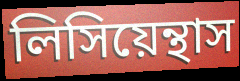
লিসিয়েন্থাস